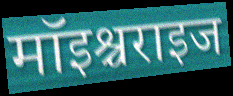
मॉइश्चराइज